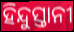
ହିନ୍ଦୁସ୍ତାନୀ